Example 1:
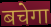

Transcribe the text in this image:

बचेगा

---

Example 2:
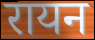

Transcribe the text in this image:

रायन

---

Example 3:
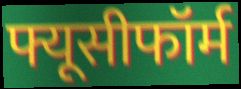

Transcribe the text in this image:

फ्यूसीफॉर्म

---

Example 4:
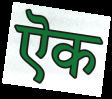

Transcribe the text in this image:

ऎक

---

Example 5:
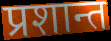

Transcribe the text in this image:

प्रशान्त